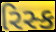
રિસ્ક